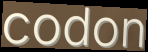
codon